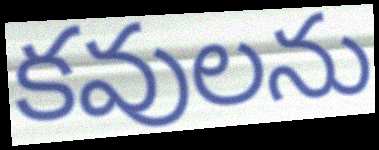
కవులను